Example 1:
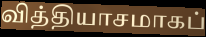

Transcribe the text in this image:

வித்தியாசமாகப்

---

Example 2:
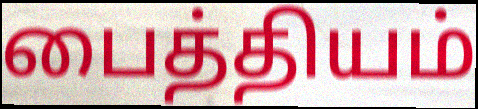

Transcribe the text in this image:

பைத்தியம்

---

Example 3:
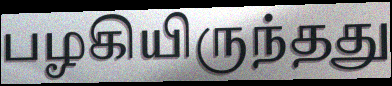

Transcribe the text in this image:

பழகியிருந்தது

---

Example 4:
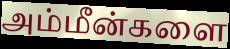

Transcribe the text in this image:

அம்மீன்களை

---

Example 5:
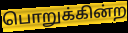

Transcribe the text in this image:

பொறுக்கின்ற